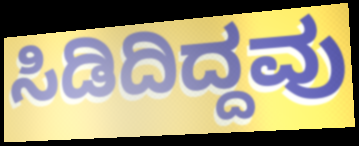
ಸಿಡಿದಿದ್ದವು